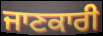
ਜਾਣਕਾਰੀ